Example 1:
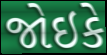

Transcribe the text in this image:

જોઇકે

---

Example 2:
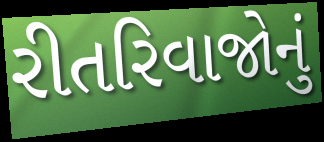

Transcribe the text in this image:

રીતરિવાજોનું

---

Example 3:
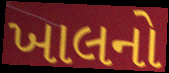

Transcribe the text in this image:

ખાલનો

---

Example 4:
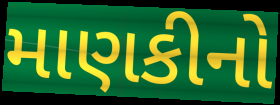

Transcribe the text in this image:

માણકીનો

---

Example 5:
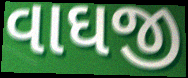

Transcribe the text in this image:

વાઘજી